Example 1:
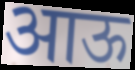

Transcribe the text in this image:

आऊ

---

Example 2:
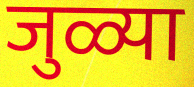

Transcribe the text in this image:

जुळ्या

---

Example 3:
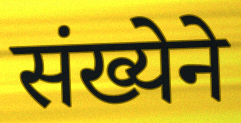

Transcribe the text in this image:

संख्येने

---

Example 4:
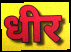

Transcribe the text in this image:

धीर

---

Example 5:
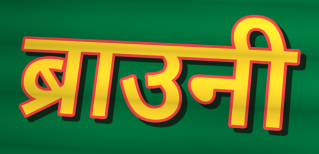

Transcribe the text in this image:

ब्राउनी